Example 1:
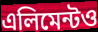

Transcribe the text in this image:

এলিমেন্টও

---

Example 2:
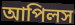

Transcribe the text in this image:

আপিলস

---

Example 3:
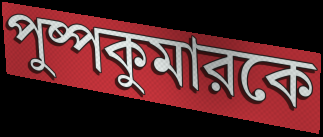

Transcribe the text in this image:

পুষ্পকুমারকে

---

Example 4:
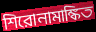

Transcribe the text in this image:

শিরোনামাঙ্কিত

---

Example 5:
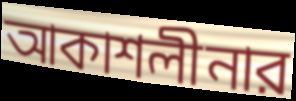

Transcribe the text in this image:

আকাশলীনার